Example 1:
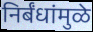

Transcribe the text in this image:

निर्बंधांमुळे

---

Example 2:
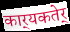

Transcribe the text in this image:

कार्यकतेर्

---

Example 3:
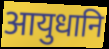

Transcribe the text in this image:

आयुधानि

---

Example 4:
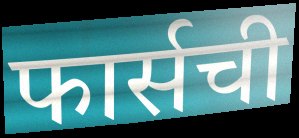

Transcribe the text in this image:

फार्सची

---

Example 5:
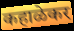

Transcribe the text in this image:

कहाळेकर